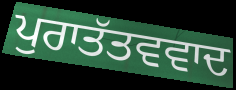
ਪੁਰਾਤੱਤਵਵਾਦ